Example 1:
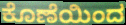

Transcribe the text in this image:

ಕೊಣೆಯಿಂದ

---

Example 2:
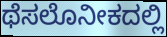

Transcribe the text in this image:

ಥೆಸಲೊನೀಕದಲ್ಲಿ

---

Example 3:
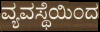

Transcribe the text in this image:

ವ್ಯವಸ್ಥೆಯಿಂದ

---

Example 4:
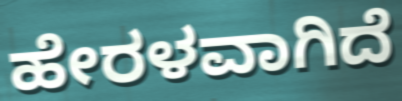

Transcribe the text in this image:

ಹೇರಳವಾಗಿದೆ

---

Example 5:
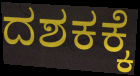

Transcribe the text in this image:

ದಶಕಕ್ಕೆ